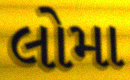
લોમા